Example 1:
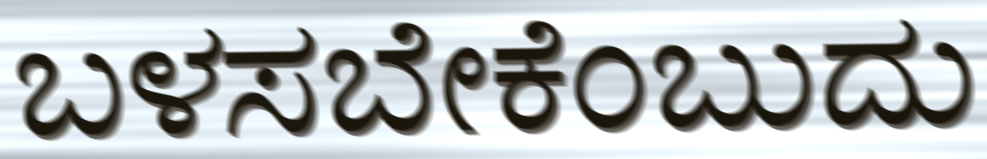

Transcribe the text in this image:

ಬಳಸಬೇಕೆಂಬುದು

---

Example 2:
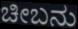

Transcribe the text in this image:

ಚೀಬನು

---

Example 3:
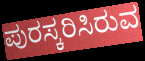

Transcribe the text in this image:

ಪುರಸ್ಕರಿಸಿರುವ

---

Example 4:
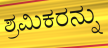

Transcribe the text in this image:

ಶ್ರಮಿಕರನ್ನು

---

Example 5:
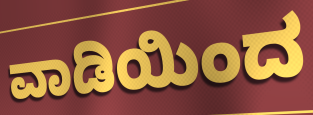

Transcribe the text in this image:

ವಾಡಿಯಿಂದ